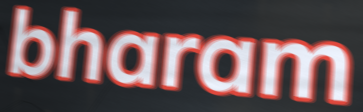
bharam